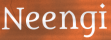
Neengi